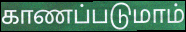
காணப்படுமாம்